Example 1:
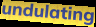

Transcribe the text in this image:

undulating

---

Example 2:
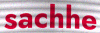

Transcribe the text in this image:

sachhe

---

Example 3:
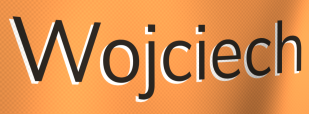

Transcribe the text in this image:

Wojciech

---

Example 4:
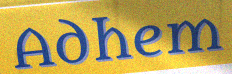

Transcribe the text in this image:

Adhem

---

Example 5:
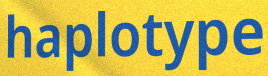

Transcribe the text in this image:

haplotype